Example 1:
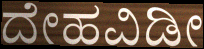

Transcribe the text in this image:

ದೇಹವಿಡೀ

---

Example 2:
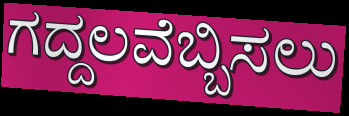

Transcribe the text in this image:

ಗದ್ದಲವೆಬ್ಬಿಸಲು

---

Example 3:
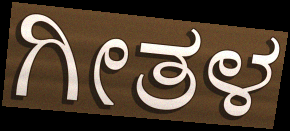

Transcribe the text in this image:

ಗೀತಳ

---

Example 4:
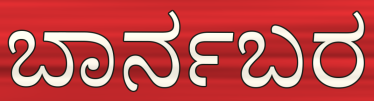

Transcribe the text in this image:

ಬಾರ್ನಬರ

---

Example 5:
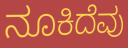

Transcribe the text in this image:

ನೂಕಿದೆವು